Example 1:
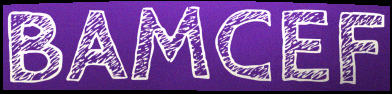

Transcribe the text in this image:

BAMCEF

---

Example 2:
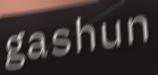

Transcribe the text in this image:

gashun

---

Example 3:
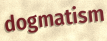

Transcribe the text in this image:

dogmatism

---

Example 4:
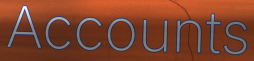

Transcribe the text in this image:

Accounts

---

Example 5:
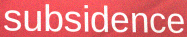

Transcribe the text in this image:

subsidence